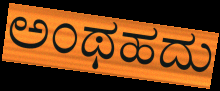
ಅಂಥಹದು